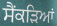
ਸੈਂਕੜਿਆਂ